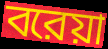
বরেয়া